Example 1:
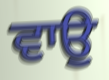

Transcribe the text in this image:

ਵਾਉ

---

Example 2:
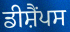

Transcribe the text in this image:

ਡੀਸ਼ੈਂਪਸ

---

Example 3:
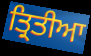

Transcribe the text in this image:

ਤ੍ਰਿਤੀਆ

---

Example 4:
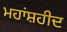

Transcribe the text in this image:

ਮਹਾਂਸ਼ਹੀਦ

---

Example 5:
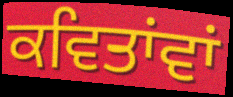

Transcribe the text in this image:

ਕਵਿਤਾਂਵਾਂ